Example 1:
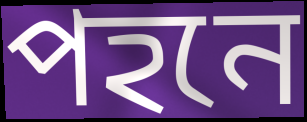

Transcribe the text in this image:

পহনে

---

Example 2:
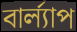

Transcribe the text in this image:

বার্ল্যাপ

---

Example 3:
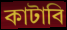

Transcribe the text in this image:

কাটাবি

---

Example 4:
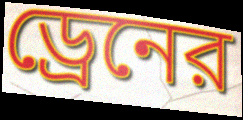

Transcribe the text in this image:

ড্রেনের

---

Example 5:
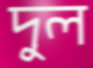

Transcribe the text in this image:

দুল